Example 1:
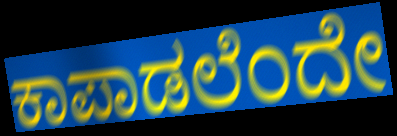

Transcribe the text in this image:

ಕಾಪಾಡಲೆಂದೇ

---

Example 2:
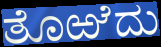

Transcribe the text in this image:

ತೊಱೆದು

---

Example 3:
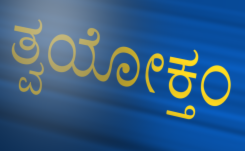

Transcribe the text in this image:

ತ್ವಯೋಕ್ತಂ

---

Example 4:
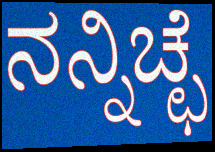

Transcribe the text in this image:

ನನ್ನಿಚ್ಛೆ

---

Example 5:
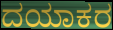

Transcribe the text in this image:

ದಯಾಕರ